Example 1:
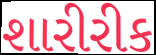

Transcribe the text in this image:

શારીરીક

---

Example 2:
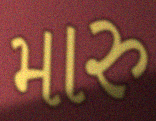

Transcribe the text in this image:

મારુ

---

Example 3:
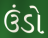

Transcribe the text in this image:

ઉંડો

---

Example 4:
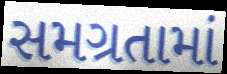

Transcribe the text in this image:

સમગ્રતામાં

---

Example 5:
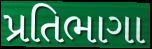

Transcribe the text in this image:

પ્રતિભાગા